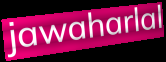
jawaharlal